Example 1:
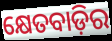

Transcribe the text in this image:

କ୍ଷେତବାଡ଼ିର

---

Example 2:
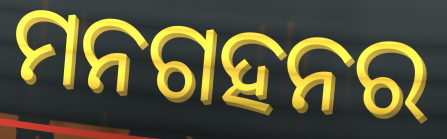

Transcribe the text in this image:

ମନଗହନର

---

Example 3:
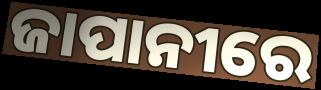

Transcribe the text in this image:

ଜାପାନୀରେ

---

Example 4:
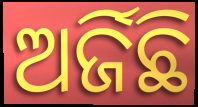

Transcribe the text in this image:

ଅର୍ଜିଛି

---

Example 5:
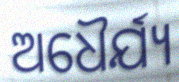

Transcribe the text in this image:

ଅଧୈର୍ଯ୍ୟ